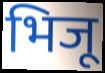
भिजू